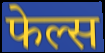
फेल्स